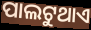
ପାଲଟୁଥାଏ